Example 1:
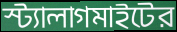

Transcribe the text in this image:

স্ট্যালাগমাইটের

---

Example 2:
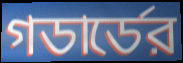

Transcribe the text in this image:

গডার্ডের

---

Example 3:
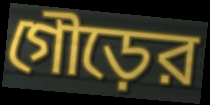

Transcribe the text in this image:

গৌড়ের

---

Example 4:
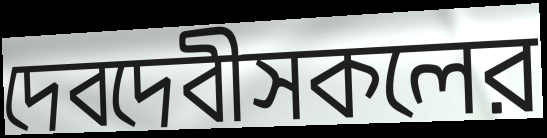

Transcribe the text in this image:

দেবদেবীসকলের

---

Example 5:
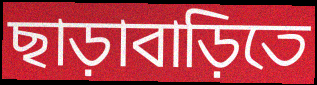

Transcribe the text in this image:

ছাড়াবাড়িতে